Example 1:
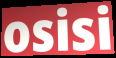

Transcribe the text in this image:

osisi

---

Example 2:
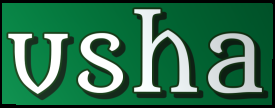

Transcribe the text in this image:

usha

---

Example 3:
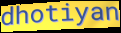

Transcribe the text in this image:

dhotiyan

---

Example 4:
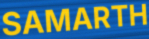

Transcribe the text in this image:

SAMARTH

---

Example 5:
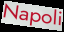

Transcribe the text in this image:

Napoli